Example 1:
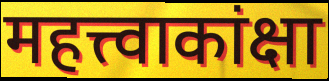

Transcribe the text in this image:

महत्त्वाकांक्षा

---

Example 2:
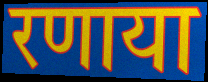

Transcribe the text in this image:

रणाया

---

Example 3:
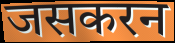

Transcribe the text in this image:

जसकरन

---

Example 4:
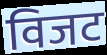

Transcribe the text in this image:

विजट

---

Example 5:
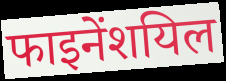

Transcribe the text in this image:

फाइनेंशयिल